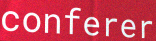
conferer